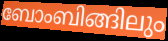
ബോംബിങ്ങിലും